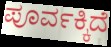
ಪೂರ್ವಕ್ಕಿದೆ